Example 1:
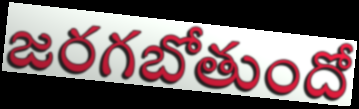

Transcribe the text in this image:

జరగబోతుందో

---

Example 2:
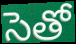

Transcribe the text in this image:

సెతో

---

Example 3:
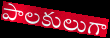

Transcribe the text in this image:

పాలకులుగా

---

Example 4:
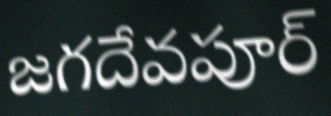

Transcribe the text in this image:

జగదేవపూర్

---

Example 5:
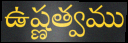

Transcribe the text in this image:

ఉష్ణత్వము